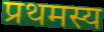
प्रथमस्य